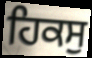
ਹਿਕਸੁ